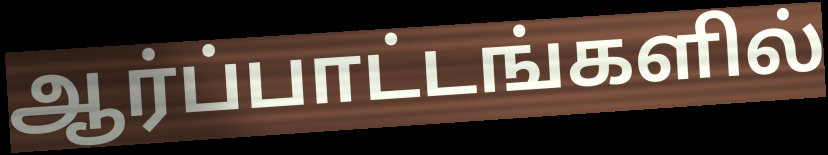
ஆர்ப்பாட்டங்களில்